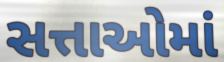
સત્તાઓમાં